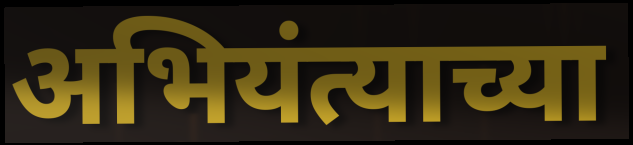
अभियंत्याच्या